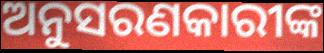
ଅନୁସରଣକାରୀଙ୍କ